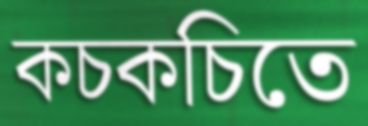
কচকচিতে